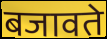
बजावते